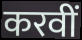
करवीं